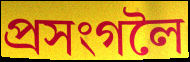
প্ৰসংগলৈ